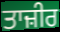
ਤਾਜ਼ੀਰ